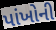
પાંખોની